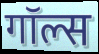
गॉल्स